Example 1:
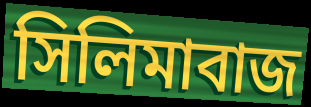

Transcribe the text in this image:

সিলিমাবাজ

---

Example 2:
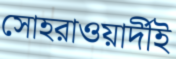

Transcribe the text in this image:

সোহরাওয়ার্দীই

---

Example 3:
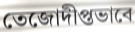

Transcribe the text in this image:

তেজোদীপ্তভাবে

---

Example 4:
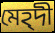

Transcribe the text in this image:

মেহ্দী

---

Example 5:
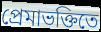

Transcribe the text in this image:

প্রেমাভক্তিতে